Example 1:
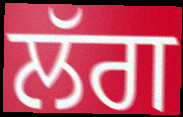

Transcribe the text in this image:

ਲੱਗ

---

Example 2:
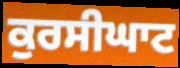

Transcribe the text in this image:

ਕੁਰਸੀਘਾਟ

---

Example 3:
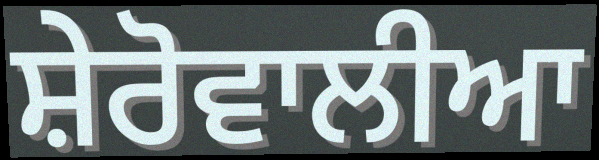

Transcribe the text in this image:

ਸ਼ੇਰੋਵਾਲੀਆ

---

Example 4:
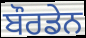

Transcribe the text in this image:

ਬੌਰਡੇਨ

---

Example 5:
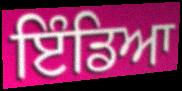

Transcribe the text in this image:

ਇੰਡਿਆ